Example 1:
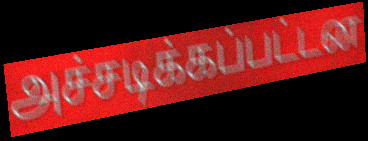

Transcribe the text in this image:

அச்சடிக்கப்பட்டன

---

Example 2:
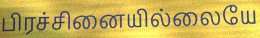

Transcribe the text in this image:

பிரச்சினையில்லையே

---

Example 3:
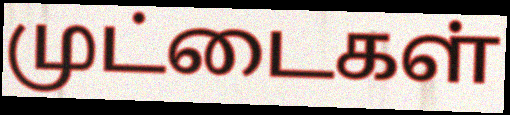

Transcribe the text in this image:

முட்டைகள்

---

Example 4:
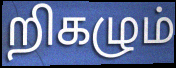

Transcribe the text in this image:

றிகழும்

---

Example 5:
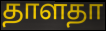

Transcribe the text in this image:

தாளதா